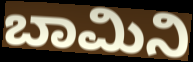
ಬಾಮಿನಿ